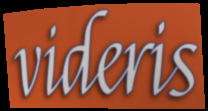
videris